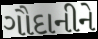
ગૌદાનીને